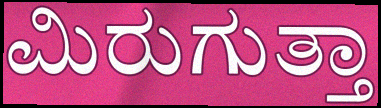
ಮಿರುಗುತ್ತಾ